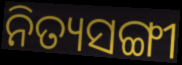
ନିତ୍ୟସଙ୍ଗୀ